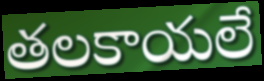
తలకాయలే